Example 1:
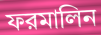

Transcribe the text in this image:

ফরমালিন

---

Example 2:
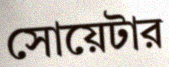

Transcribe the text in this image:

সোয়েটার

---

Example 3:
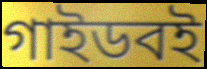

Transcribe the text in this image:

গাইডবই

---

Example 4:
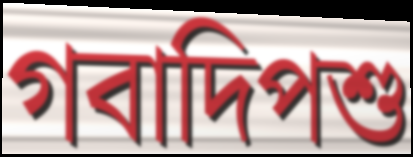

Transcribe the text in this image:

গবাদিপশু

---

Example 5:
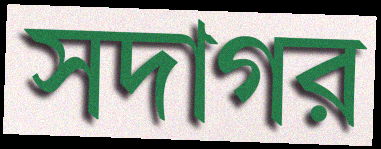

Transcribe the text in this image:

সদাগর